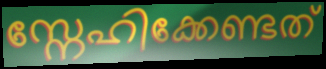
സ്നേഹിക്കേണ്ടത്